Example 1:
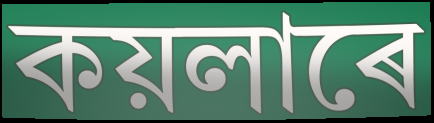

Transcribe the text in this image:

কয়লাৰে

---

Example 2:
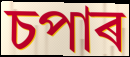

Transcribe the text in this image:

চপাৰ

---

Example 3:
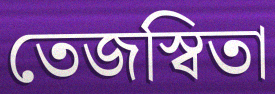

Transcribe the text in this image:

তেজস্বিতা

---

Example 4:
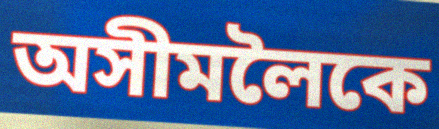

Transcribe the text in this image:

অসীমলৈকে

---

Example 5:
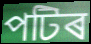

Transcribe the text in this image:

পটিৰ